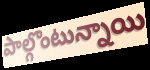
పాల్గొంటున్నాయి